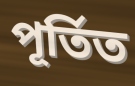
পূৰ্তিত